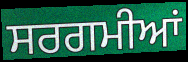
ਸਰਗਮੀਆਂ